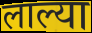
लाल्या